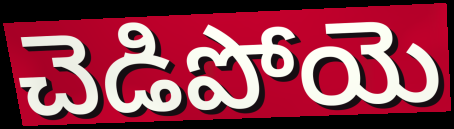
చెడిపోయె